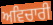
ਅਵਿਚਾਰੀ